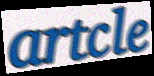
artcle